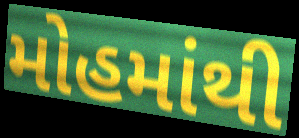
મોહમાંથી